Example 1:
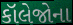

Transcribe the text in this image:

કૉલેજોના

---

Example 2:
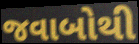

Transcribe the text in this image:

જવાબોથી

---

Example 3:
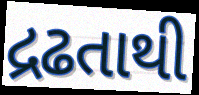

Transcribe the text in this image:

દ્રઢતાથી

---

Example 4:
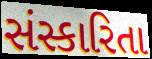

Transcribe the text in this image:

સંસ્કારિતા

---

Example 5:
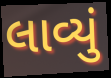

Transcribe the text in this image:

લાવ્યું